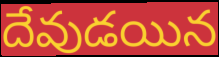
దేవుడయిన